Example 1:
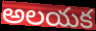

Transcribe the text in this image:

అలయక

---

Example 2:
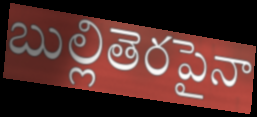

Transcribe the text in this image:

బుల్లితెరపైనా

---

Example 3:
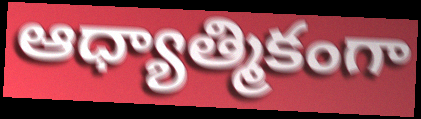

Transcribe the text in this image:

ఆధ్యాత్మికంగా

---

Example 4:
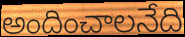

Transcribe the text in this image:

అందించాలనేది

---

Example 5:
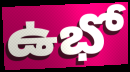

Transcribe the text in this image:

ఉభో